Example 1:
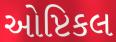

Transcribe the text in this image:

ઓપ્ટિકલ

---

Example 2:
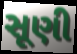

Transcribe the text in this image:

સૂણી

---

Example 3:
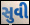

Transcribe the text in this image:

સુવી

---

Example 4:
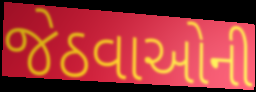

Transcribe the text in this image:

જેઠવાઓની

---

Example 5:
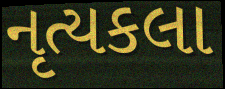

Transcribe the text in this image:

નૃત્યકલા